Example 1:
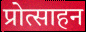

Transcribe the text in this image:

प्रोत्साहन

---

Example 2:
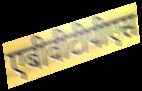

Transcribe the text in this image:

एबीवीटीपीएस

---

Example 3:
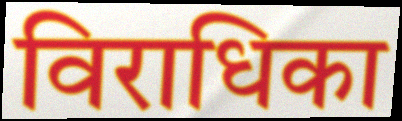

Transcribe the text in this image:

विराधिका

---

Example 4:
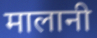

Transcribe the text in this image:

मालानी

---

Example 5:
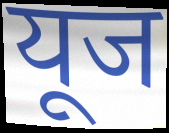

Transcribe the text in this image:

यूज